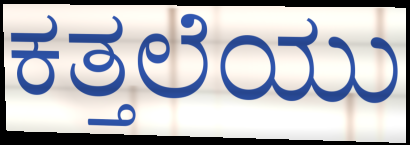
ಕತ್ತಲೆಯು